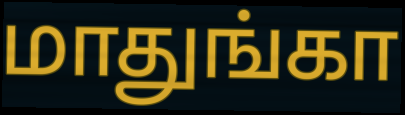
மாதுங்கா